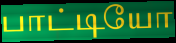
பாட்டியோ